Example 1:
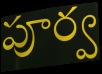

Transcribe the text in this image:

పూర్వ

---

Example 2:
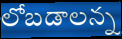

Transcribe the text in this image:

లోబడాలన్న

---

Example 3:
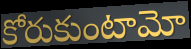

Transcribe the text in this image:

కోరుకుంటామో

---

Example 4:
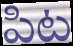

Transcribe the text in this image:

పిట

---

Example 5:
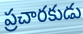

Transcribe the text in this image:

ప్రచారకుడు